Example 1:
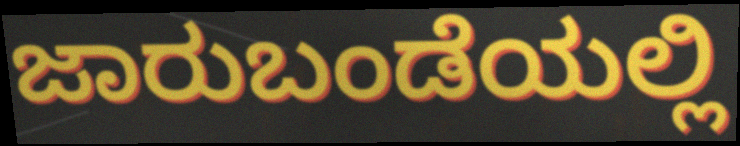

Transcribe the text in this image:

ಜಾರುಬಂಡೆಯಲ್ಲಿ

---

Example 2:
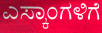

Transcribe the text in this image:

ಎಸ್ಕಾಂಗಳಿಗೆ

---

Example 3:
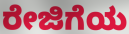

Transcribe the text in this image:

ರೇಜಿಗೆಯ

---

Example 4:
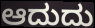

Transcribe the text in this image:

ಆದುದು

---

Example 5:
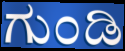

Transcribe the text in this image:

ಗುಂಡಿ